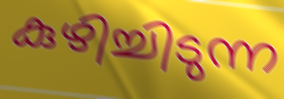
കുഴിച്ചിടുന്ന